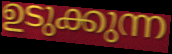
ഉടുക്കുന്ന